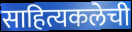
साहित्यकलेची